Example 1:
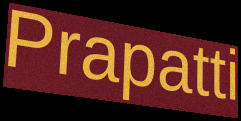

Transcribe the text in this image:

Prapatti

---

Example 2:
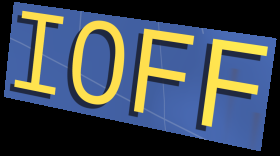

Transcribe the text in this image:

IOFF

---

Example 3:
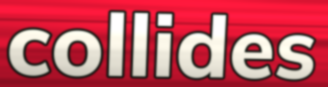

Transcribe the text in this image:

collides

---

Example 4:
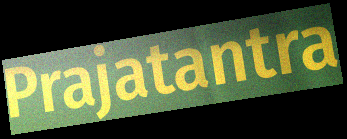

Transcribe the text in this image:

Prajatantra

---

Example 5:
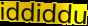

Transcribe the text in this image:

iddiddu